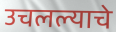
उचलल्याचे